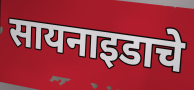
सायनाइडाचे